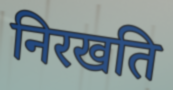
निरखति